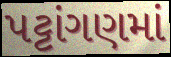
પટ્ટાંગણમાં